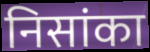
निसांका